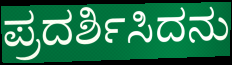
ಪ್ರದರ್ಶಿಸಿದನು